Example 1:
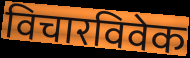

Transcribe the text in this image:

विचारविवेक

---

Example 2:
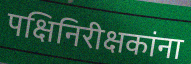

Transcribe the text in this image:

पक्षिनिरीक्षकांना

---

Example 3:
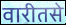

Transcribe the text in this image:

वारीतसे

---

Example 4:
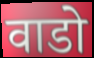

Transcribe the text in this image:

वाडो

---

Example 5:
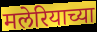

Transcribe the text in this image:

मलेरियाच्या